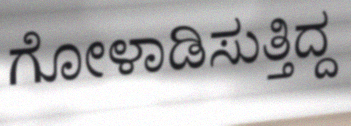
ಗೋಳಾಡಿಸುತ್ತಿದ್ದ